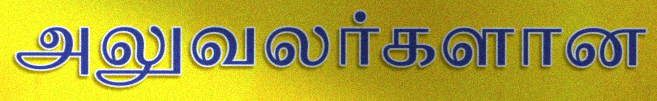
அலுவலர்களான